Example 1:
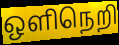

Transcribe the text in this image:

ஒளிநெறி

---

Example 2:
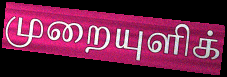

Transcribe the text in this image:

முறையுளிக்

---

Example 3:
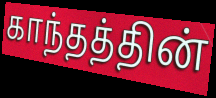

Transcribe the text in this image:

காந்தத்தின்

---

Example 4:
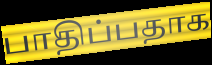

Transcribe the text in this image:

பாதிப்பதாக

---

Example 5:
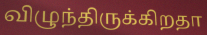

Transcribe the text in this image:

விழுந்திருக்கிறதா